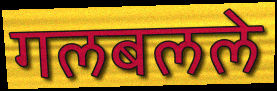
गलबलले